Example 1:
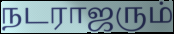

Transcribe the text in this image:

நடராஜரும்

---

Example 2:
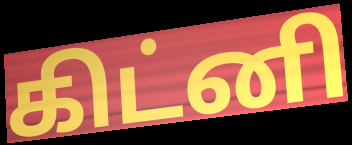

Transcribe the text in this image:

கிட்னி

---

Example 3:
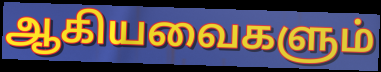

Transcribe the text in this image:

ஆகியவைகளும்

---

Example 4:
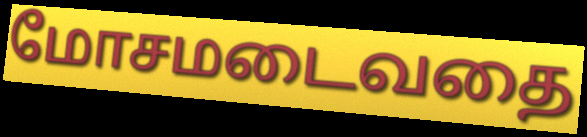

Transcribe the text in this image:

மோசமடைவதை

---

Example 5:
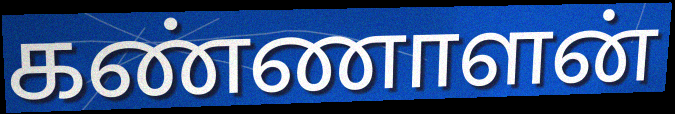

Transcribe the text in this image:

கண்ணாளன்